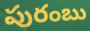
పురంబు